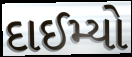
દાઈમ્યો